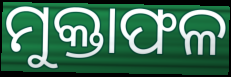
ମୁକ୍ତାଫଳ